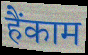
हैंकाम